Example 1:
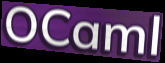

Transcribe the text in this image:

OCaml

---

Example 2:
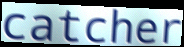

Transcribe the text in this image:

catcher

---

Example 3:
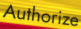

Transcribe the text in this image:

Authorize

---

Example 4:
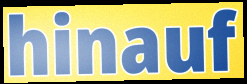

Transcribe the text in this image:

hinauf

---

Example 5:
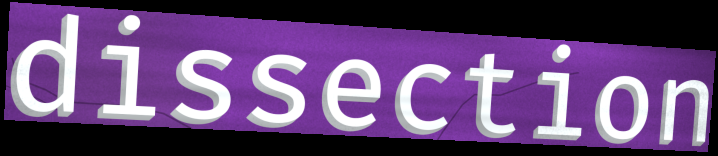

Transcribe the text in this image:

dissection